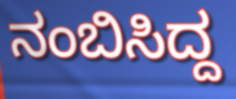
ನಂಬಿಸಿದ್ದ